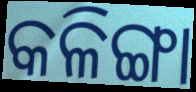
କଳିଙ୍ଗା